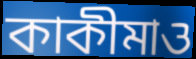
কাকীমাও